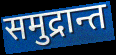
समुद्रान्त